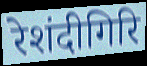
रेशंदीगिरि